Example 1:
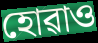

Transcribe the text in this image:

হোৱাও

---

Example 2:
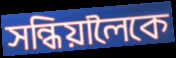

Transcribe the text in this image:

সন্ধিয়ালৈকে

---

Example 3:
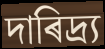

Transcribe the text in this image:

দাৰিদ্ৰ্য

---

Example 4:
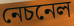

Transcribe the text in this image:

নেচনেল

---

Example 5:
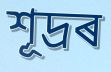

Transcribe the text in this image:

শূদ্ৰৰ